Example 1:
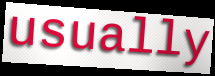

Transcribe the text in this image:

usually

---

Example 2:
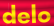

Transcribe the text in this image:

delo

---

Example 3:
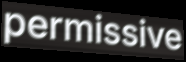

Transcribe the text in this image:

permissive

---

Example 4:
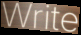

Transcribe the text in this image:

Write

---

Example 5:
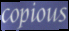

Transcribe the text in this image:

copious